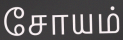
சோயம்